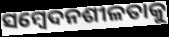
ସମ୍ବେଦନଶୀଳତାକୁ